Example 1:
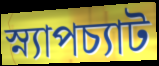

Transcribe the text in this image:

স্ন্যাপচ্যাট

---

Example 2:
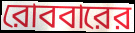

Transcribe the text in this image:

রোববারের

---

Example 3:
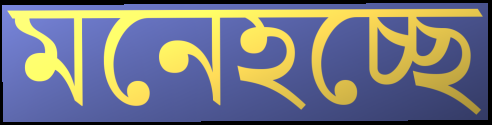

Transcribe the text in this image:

মনেহচ্ছে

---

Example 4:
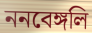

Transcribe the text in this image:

ননবেঙ্গলি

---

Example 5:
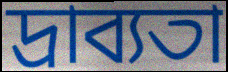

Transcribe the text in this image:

দ্রাব্যতা